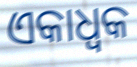
ଏକାଧ୍ଵକ